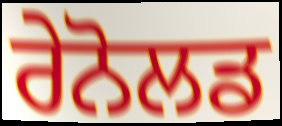
ਰੇਨੋਲਡ